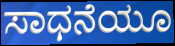
ಸಾಧನೆಯೂ